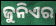
ଜୁନିଏର